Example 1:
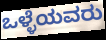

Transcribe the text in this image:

ಒಳ್ಳೆಯವರು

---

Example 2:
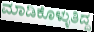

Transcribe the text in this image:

ಮಾಡಿಕೊಳ್ಳುತಿದ್ದ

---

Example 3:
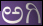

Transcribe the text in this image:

ಅಗಿ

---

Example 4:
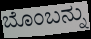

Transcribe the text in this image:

ಬೊಂಬನ್ನು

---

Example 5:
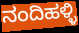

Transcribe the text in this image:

ನಂದಿಹಳ್ಳಿ